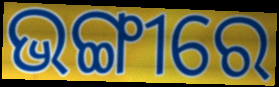
ଭଙ୍ଗୀରେ